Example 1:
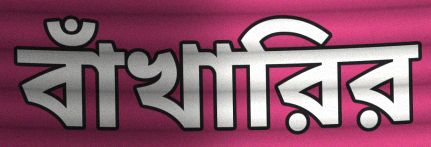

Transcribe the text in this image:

বাঁখারির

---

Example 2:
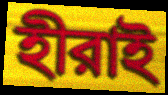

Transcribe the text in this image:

হীরাই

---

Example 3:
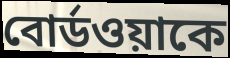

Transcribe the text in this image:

বোর্ডওয়াকে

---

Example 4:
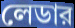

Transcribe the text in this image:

লেডার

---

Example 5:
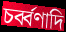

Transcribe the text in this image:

চর্ব্বণাদি